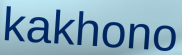
kakhono